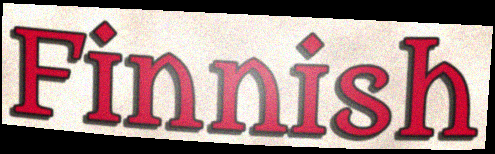
Finnish